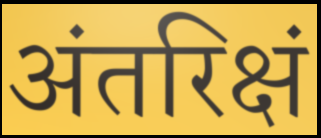
अंतरिक्षं